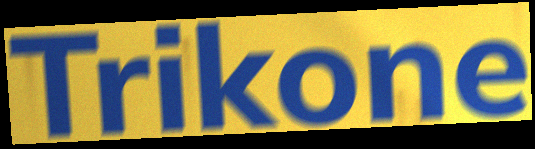
Trikone